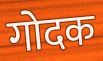
गोदक